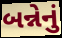
બન્નેનું